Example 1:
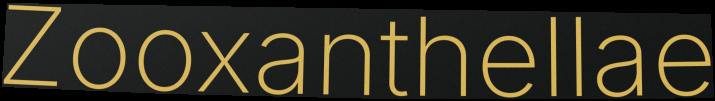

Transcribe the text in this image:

Zooxanthellae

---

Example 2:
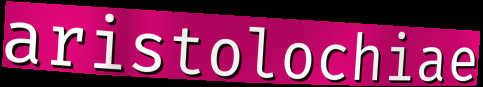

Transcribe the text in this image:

aristolochiae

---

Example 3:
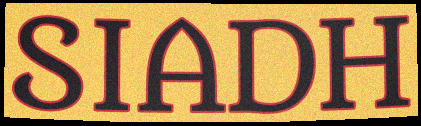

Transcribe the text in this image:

SIADH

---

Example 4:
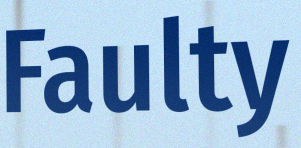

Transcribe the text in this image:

Faulty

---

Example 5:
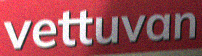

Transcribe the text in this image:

vettuvan